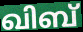
ഖിബ്